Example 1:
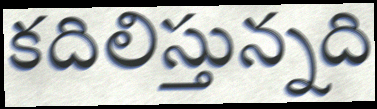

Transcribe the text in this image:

కదిలిస్తున్నది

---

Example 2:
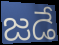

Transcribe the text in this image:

జడే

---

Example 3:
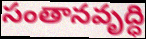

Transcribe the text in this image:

సంతానవృద్ధి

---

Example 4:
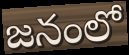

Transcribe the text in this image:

జనంలో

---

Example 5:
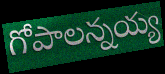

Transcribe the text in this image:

గోపాలన్నయ్య